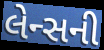
લેન્સની